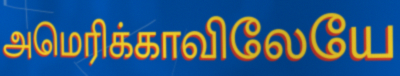
அமெரிக்காவிலேயே